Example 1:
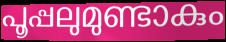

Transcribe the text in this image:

പൂപ്പലുമുണ്ടാകും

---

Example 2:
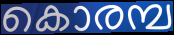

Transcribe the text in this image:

കൊരമ്പ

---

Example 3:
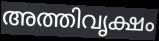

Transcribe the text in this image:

അത്തിവൃക്ഷം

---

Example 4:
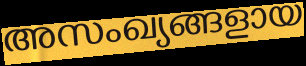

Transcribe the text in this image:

അസംഖ്യങ്ങളായ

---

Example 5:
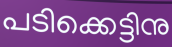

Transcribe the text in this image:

പടിക്കെട്ടിനു